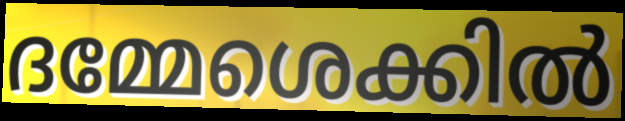
ദമ്മേശെക്കിൽ